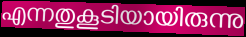
എന്നതുകൂടിയായിരുന്നു